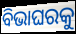
ବିଭାଘରକୁ